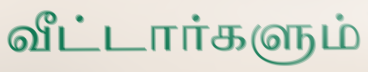
வீட்டார்களும்